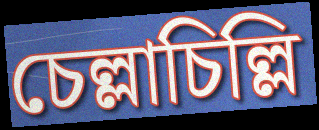
চেল্লাচিল্লি